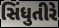
સિંધુતીરે